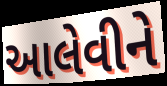
આલેવીને